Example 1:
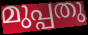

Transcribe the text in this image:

മുപ്പതു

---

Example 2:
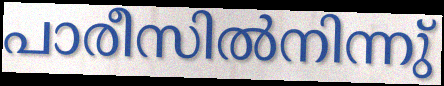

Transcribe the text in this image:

പാരീസിൽനിന്നു്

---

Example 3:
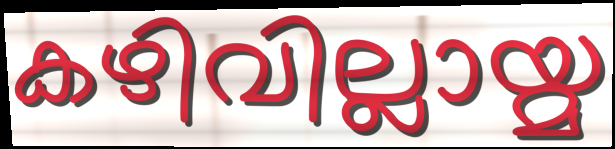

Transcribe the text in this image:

കഴിവില്ലായ്മ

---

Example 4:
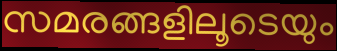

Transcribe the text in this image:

സമരങ്ങളിലൂടെയും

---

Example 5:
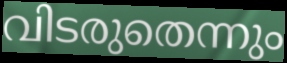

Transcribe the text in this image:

വിടരുതെന്നും